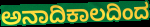
ಅನಾದಿಕಾಲದಿಂದ